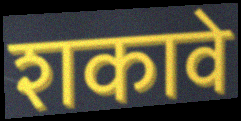
शकावे